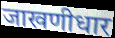
जाखणीधार